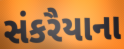
સંકરૈયાના